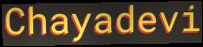
Chayadevi